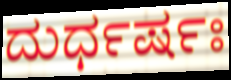
ದುರ್ಧರ್ಷಃ